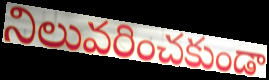
నిలువరించకుండా